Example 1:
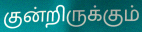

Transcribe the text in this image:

குன்றிருக்கும்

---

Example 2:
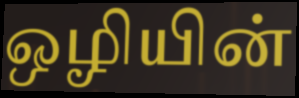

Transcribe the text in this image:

ஒழியின்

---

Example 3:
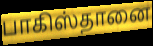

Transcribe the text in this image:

பாகிஸ்தானை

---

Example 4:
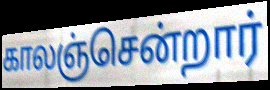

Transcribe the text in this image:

காலஞ்சென்றார்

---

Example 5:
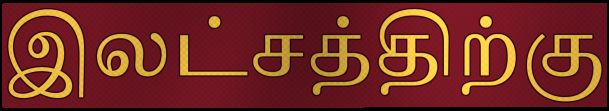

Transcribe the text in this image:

இலட்சத்திற்கு